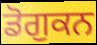
ਡੋਗੁਕਨ